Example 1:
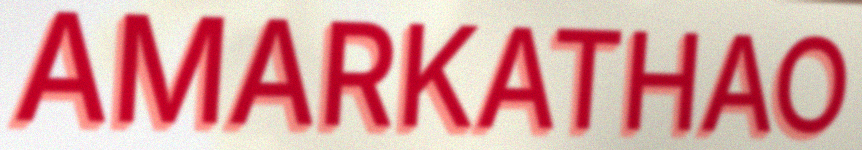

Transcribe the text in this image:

AMARKATHAO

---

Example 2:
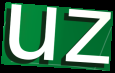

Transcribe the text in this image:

uz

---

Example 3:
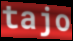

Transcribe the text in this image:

tajo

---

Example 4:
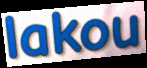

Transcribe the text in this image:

lakou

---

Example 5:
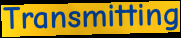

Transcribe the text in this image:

Transmitting